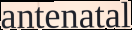
antenatal